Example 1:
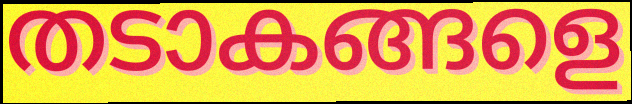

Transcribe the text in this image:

തടാകങ്ങളെ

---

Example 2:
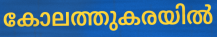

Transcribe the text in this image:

കോലത്തുകരയിൽ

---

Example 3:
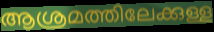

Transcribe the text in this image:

ആശ്രമത്തിലേക്കുള്ള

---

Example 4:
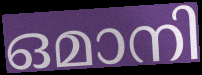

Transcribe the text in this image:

ഒമാനി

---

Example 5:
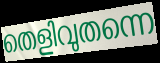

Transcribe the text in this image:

തെളിവുതന്നെ